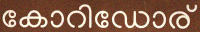
കോറിഡോര്